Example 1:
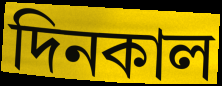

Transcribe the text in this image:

দিনকাল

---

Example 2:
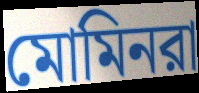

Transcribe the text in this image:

মোমিনরা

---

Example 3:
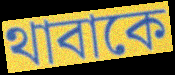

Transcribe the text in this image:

থাবাকে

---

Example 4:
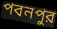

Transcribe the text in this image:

পবনপুর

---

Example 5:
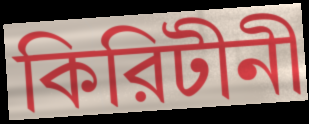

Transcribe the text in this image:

কিরিটীনী